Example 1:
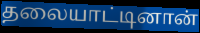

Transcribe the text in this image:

தலையாட்டினான்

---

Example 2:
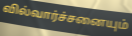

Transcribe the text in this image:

வில்வார்ச்சனையும்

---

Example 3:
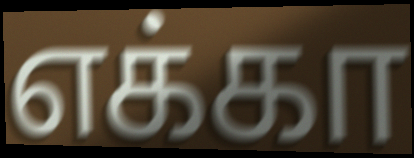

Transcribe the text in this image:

எக்கா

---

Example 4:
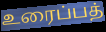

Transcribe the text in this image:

உரைப்பத்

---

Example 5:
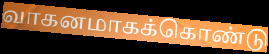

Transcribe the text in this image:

வாகனமாகக்கொண்டு